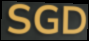
SGD